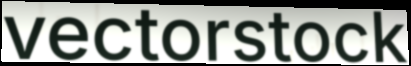
vectorstock